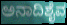
ಅನಾದಿಶೈವ